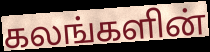
கலங்களின்